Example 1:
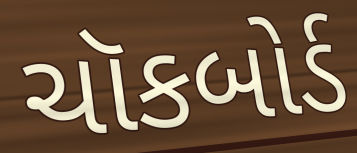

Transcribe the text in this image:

ચૉકબોર્ડ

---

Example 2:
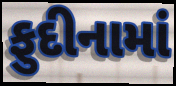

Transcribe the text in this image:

ફુદીનામાં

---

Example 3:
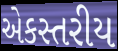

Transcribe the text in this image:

એકસ્તરીય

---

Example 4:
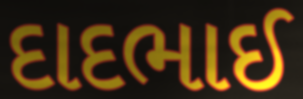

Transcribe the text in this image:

દાદભાઈ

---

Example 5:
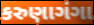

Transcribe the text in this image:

કરુણાગંગા